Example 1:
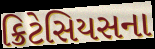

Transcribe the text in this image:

ક્રિટેસિયસના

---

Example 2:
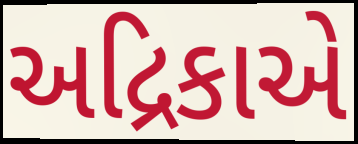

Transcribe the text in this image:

અદ્રિકાએ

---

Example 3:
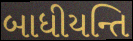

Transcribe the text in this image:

બાધીયન્તિ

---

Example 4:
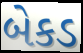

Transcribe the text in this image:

બેકડ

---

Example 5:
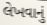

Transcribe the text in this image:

લેખવાનું